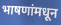
भाषणांमधून